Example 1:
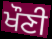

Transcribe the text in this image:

ਖੌਣੀ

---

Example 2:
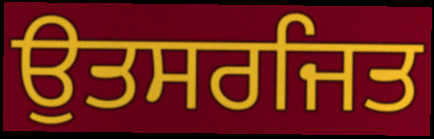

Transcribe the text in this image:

ਉਤਸਰਜਿਤ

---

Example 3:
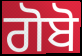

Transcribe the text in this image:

ਗੋਬੋ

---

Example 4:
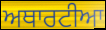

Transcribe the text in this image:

ਅਥਾਰਟੀਆ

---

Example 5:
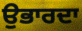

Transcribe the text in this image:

ਉਭਾਰਦਾ